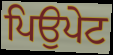
ਪਿਉਪੇਟ